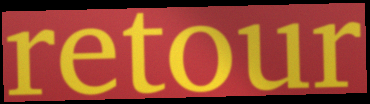
retour